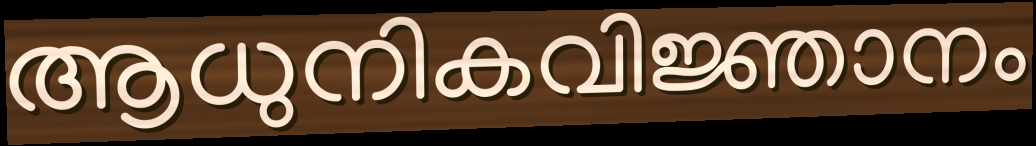
ആധുനികവിജ്ഞാനം